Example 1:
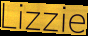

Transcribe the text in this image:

Lizzie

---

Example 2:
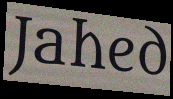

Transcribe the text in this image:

Jahed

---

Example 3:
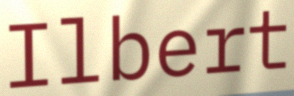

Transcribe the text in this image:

Ilbert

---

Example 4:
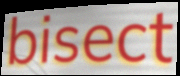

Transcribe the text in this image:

bisect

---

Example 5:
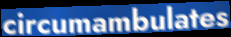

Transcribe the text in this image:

circumambulates